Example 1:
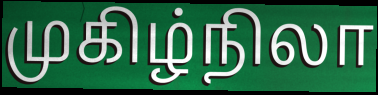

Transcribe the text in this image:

முகிழ்நிலா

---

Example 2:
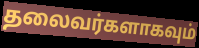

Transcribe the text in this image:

தலைவர்களாகவும்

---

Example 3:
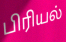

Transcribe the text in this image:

பிரியல்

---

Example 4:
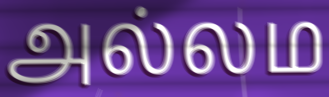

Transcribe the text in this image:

அல்லம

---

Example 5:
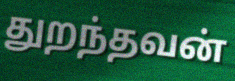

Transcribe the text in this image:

துறந்தவன்